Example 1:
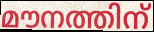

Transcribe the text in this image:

മൗനത്തിന്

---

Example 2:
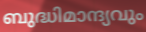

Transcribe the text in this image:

ബുദ്ധിമാന്ദ്യവും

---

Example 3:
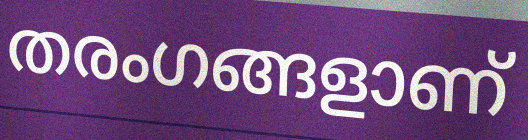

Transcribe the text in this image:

തരംഗങ്ങളാണ്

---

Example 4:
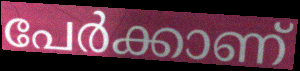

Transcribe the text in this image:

പേർക്കാണ്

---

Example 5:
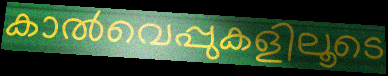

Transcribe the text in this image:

കാൽവെപ്പുകളിലൂടെ